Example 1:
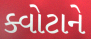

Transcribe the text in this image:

ક્વોટાને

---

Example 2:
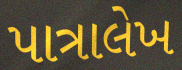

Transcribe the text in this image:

પાત્રાલેખ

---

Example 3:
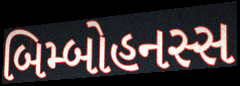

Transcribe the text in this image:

બિમ્બોહનસ્સ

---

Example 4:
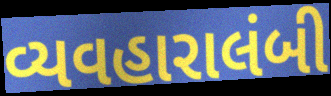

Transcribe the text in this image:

વ્યવહારાલંબી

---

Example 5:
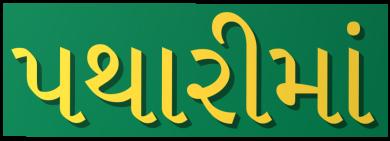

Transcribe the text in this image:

પથારીમાં